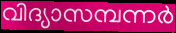
വിദ്യാസമ്പന്നർ